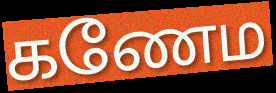
கணேம